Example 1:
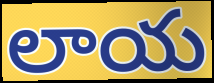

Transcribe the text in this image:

లాయ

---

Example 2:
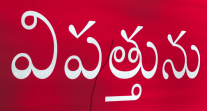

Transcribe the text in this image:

విపత్తును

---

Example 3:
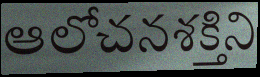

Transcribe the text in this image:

ఆలోచనశక్తిని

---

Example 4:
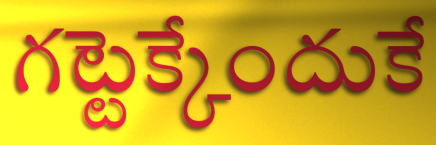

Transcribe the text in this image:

గట్టెక్కేందుకే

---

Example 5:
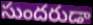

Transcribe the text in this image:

సుందరుడా